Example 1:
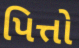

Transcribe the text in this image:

પિત્તો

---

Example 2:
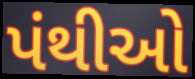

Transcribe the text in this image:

પંથીઓ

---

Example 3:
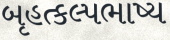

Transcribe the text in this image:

બૃહત્કલ્પભાષ્ય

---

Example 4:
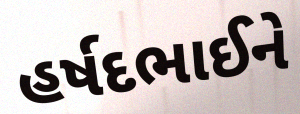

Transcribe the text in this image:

હર્ષદભાઈને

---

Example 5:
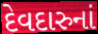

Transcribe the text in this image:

દેવદારુનાં